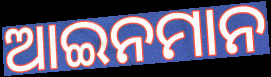
ଆଇନମାନ